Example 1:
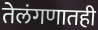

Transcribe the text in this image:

तेलंगणातही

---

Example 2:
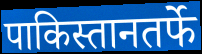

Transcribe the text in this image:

पाकिस्तानतर्फे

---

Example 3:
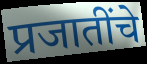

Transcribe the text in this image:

प्रजातींचे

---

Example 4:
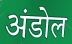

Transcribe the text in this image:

अंडोल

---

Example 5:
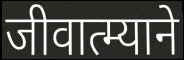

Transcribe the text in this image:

जीवात्म्याने